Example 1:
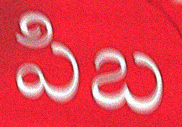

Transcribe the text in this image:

పిబ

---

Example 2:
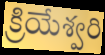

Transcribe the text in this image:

క్రియేశ్వరి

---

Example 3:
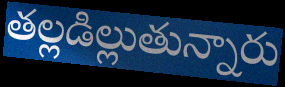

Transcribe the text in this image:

తల్లడిల్లుతున్నారు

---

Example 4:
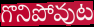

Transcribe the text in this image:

గొనిపోవుట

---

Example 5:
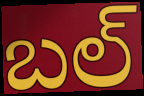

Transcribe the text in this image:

బల్